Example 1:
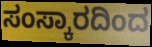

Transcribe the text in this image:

ಸಂಸ್ಕಾರದಿಂದ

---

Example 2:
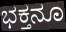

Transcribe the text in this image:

ಭಕ್ತನೂ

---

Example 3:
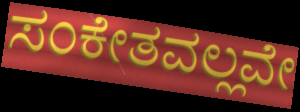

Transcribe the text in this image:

ಸಂಕೇತವಲ್ಲವೇ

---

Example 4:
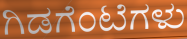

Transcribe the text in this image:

ಗಿಡಗೆಂಟೆಗಳು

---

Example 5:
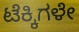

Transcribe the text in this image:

ಟೆಕ್ಕಿಗಳೇ